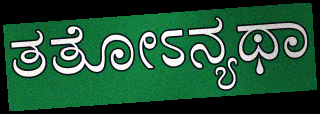
ತತೋಽನ್ಯಥಾ